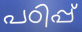
പഠിപ്പ്